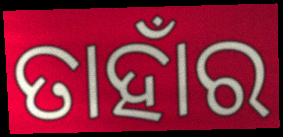
ତାହାଁର